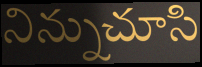
నిన్నుచూసి